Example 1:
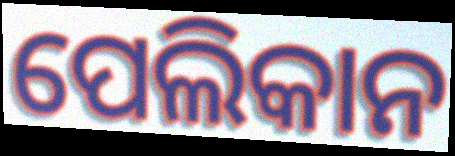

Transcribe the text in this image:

ପେଲିକାନ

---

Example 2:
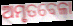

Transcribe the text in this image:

ଅମୃତବେଳା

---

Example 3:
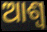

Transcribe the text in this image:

ଆଶ୍ୱ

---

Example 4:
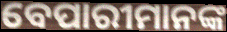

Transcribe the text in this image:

ବେପାରୀମାନଙ୍କ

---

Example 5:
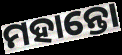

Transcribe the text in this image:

ମହାନ୍ତୋ